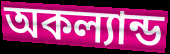
অকল্যান্ড